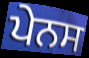
ਪੇਨਸ